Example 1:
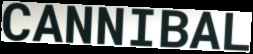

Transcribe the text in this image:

CANNIBAL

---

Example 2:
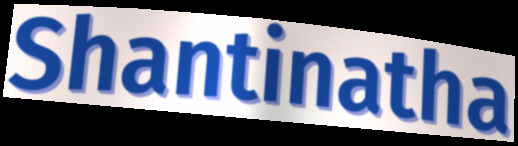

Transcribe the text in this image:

Shantinatha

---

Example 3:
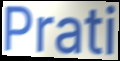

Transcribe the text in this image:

Prati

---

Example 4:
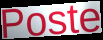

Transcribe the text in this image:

Poste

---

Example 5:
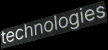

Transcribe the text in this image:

technologies